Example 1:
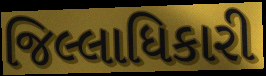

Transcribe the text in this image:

જિલ્લાધિકારી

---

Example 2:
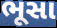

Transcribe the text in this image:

ભૂસા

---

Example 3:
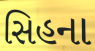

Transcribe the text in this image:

સિહના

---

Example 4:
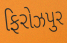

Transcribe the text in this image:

ફિરોઝપુર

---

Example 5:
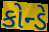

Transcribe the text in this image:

કોન્ડે